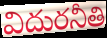
విదురనీతి